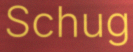
Schug